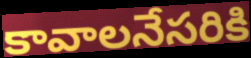
కావాలనేసరికి